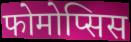
फोमोप्सिस